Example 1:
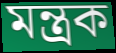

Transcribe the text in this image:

মন্ত্রক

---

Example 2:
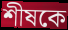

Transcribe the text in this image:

শীষকে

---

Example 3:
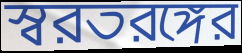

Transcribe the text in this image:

স্বরতরঙ্গের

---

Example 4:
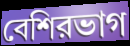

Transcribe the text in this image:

বেশিরভাগ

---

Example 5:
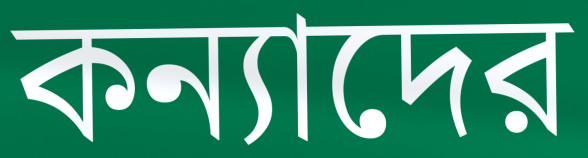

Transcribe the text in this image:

কন্যাদের